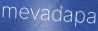
mevadapa